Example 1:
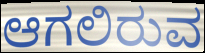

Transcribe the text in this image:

ಆಗಲಿರುವ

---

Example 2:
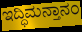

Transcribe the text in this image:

ಇದ್ಧಿಮನ್ತಾನಂ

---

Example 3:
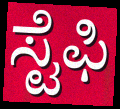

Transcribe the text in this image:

ಸ್ಟೆಫಿ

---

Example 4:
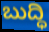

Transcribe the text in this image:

ಬುದ್ಧಿ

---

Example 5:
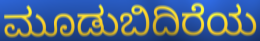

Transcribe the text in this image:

ಮೂಡುಬಿದಿರೆಯ